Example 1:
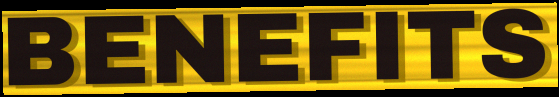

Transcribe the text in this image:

BENEFITS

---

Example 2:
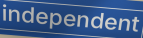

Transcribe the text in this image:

independent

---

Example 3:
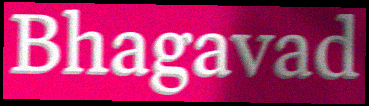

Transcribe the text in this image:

Bhagavad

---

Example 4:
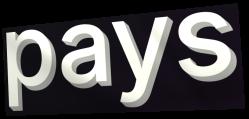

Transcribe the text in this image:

pays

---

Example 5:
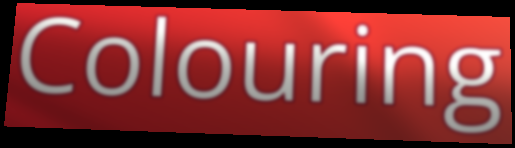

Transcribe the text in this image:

Colouring